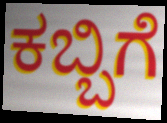
ಕಬ್ಬಿಗೆ